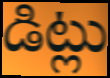
డిట్లు